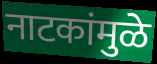
नाटकांमुळे